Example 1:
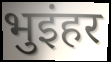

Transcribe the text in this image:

भुइंहर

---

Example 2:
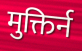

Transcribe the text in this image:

मुक्तिर्न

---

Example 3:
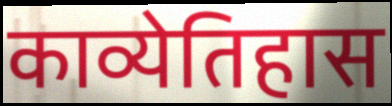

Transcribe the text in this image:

काव्येतिहास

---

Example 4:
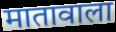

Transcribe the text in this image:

मातावाला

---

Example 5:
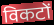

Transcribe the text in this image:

विकटों